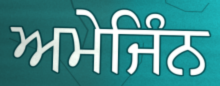
ਅਮੇਜਿੰਨ